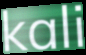
kali